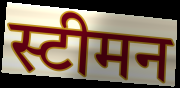
स्टीमन